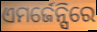
ଏମର୍ଜେନ୍ସିରେ